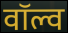
वॉल्व